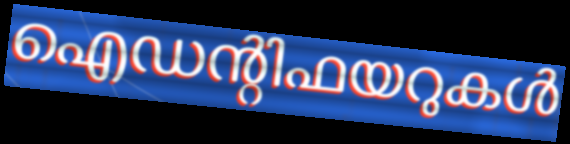
ഐഡന്റിഫയറുകൾ